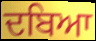
ਦਬਿਆ